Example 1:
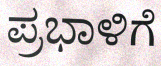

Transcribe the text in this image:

ಪ್ರಭಾಳಿಗೆ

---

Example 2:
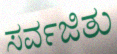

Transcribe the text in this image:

ಸರ್ವಜಿತು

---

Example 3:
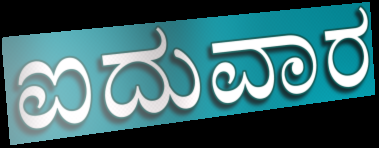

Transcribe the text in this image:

ಐದುವಾರ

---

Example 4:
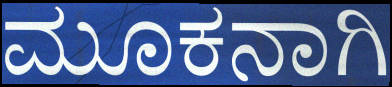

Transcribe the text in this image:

ಮೂಕನಾಗಿ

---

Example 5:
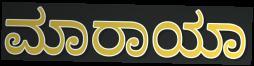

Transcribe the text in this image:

ಮಾರಾಯಾ